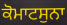
ਕੋਮਾਟਸੁਨਾ